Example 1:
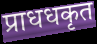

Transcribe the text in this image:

प्राधधकृत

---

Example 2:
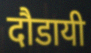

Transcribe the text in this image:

दौडायी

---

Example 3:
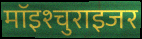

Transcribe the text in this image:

मॉइश्चुराइजर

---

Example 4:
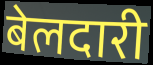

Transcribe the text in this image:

बेलदारी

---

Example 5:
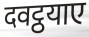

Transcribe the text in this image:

दवट्ठयाए